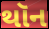
થૉન